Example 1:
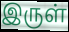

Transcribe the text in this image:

இருள்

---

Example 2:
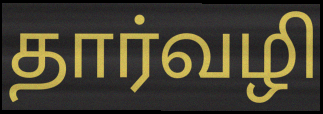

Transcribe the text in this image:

தார்வழி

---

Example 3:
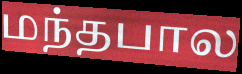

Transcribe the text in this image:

மந்தபால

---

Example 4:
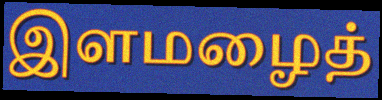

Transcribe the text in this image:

இளமழைத்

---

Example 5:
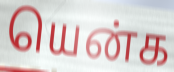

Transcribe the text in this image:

யென்க